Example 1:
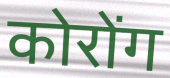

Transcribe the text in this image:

कोरोंग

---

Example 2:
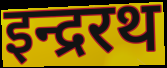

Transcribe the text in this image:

इन्द्ररथ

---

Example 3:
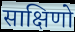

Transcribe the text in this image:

साक्षिणो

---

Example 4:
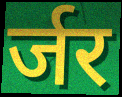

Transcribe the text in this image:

र्जर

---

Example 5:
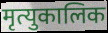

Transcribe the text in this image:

मृत्युकालिक